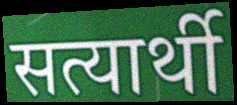
सत्यार्थी